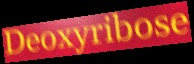
Deoxyribose